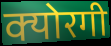
क्योरगी